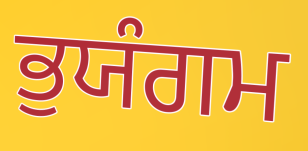
ਭੁਯੰਗਮ